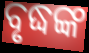
ବୃଦ୍ଧଙ୍କ